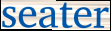
seater